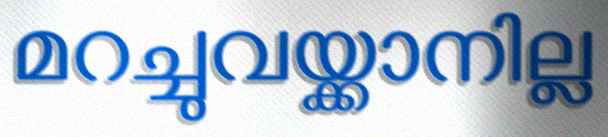
മറച്ചുവയ്ക്കാനില്ല